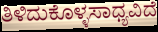
ತಿಳಿದುಕೊಳ್ಳಸಾಧ್ಯವಿದೆ